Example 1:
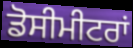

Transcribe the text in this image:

ਡੋਸੀਮੀਟਰਾਂ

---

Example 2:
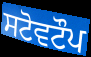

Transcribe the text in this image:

ਸਟੋਵਟੌਪ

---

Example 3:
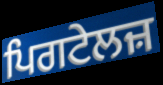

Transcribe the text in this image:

ਪਿਗਟੇਲਜ਼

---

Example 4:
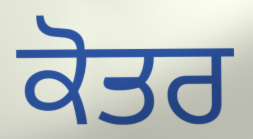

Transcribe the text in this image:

ਕੋਤਰ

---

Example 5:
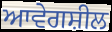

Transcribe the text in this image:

ਆਵੇਗਸ਼ੀਲ